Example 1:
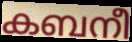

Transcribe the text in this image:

കബനീ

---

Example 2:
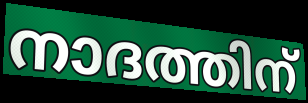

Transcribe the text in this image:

നാദത്തിന്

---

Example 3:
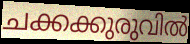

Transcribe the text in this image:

ചക്കക്കുരുവിൽ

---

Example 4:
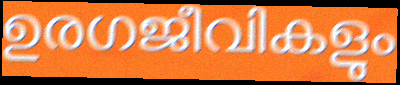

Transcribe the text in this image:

ഉരഗജീവികളും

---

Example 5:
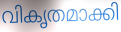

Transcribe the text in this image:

വികൃതമാക്കി